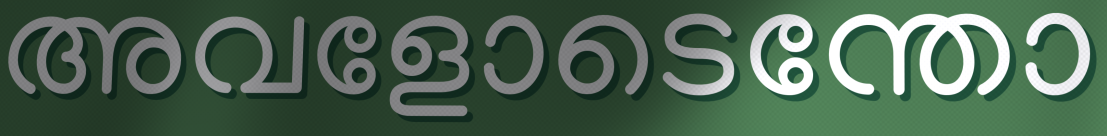
അവളോടെന്തോ